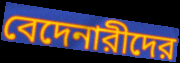
বেদেনারীদের